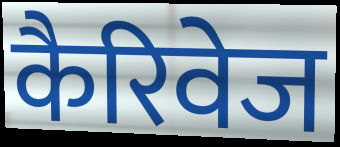
कैरिवेज